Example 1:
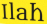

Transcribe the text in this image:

Ilah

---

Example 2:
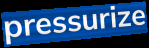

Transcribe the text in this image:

pressurize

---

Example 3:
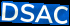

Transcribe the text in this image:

DSAC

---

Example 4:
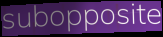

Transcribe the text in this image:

subopposite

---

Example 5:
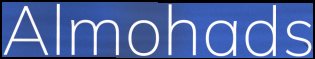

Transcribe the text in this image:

Almohads